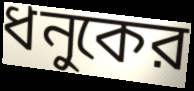
ধনুকের